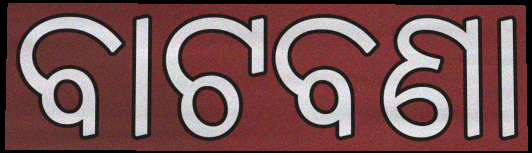
ବାଟବଣା